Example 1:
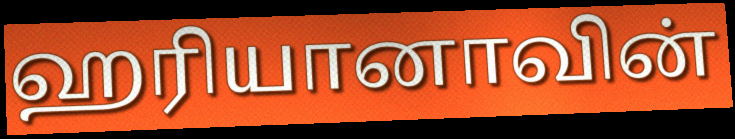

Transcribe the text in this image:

ஹரியானாவின்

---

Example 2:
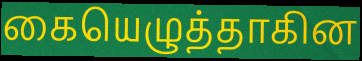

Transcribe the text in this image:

கையெழுத்தாகின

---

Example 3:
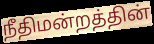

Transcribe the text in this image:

நீதிமன்றத்தின்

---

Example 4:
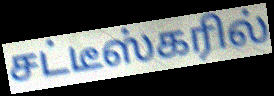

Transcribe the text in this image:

சட்டீஸ்கரில்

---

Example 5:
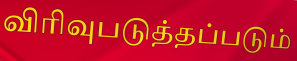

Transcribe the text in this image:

விரிவுபடுத்தப்படும்